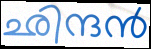
ഛിന്ദൻ